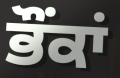
ਭੌਂਕਾਂ